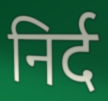
निर्द